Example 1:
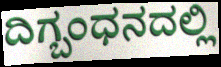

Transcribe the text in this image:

ದಿಗ್ಬಂಧನದಲ್ಲಿ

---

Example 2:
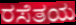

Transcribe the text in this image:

ರಸೆತಯ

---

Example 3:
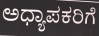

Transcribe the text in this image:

ಅಧ್ಯಾಪಕರಿಗೆ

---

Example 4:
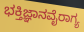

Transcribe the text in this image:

ಭಕ್ತಿಜ್ಞಾನವೈರಾಗ್ಯ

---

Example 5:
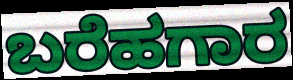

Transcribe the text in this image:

ಬರೆಹಗಾರ